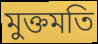
মুক্তমতি